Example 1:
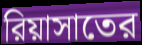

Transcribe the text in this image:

রিয়াসাতের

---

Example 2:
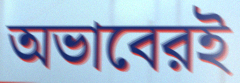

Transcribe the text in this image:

অভাবেরই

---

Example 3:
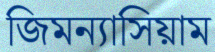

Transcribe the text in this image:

জিমন্যাসিয়াম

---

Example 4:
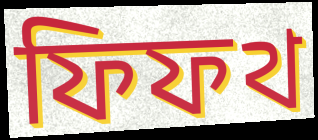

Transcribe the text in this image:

ফিফথ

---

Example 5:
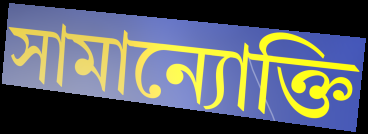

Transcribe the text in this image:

সামান্যোক্তি